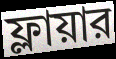
ফ্লায়ার